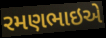
રમણભાઇએ